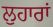
ਲੁਹਾਰਾਂ